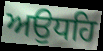
ਅਉਧਹਿ